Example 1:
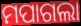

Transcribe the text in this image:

ମପାଗଲା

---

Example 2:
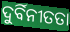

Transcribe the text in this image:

ଦୁର୍ବିନୀତତା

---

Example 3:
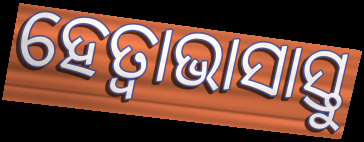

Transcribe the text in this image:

ହେତ୍ଵାଭାସାସ୍ତୁ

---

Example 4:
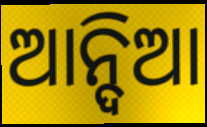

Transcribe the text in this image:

ଆନ୍ଦିଆ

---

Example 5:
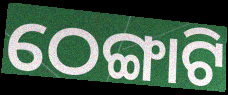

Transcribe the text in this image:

ଠେଙ୍ଗାଟି